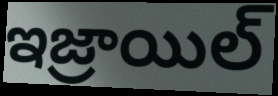
ఇజ్రాయిల్